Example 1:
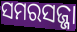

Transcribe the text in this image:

ସମରସଜ୍ଜା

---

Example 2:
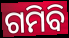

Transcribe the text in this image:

ଗମିବି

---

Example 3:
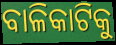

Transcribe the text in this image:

ବାଳିକାଟିକୁ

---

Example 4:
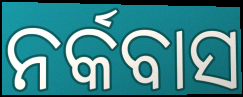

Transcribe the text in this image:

ନର୍କବାସ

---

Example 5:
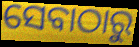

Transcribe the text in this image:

ସେବାଠାରୁ